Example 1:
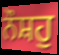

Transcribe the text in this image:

ਨੌਸ਼ਹੁ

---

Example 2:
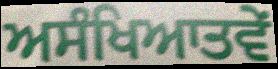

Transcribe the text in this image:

ਅਸੰਖਿਆਤਵੇਂ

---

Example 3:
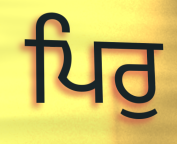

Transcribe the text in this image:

ਪਿਰੁ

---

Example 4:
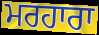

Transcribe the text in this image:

ਮਰਹਾਰਾ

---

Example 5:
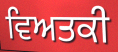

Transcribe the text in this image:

ਵਿਅਤਕੀ